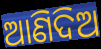
ଆଣିଦିଅ